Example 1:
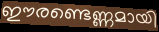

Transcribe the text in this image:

ഈരണ്ടെണ്ണമായി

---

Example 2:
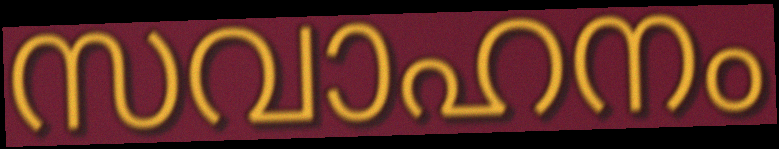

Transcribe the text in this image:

സവാഹനം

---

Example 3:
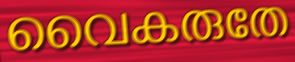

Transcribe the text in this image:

വൈകരുതേ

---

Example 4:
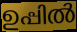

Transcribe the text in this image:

ഉപ്പിൽ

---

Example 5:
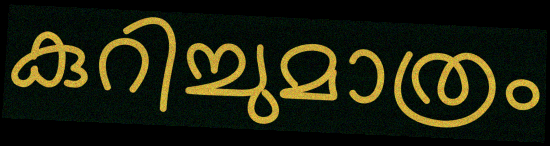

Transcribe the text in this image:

കുറിച്ചുമാത്രം